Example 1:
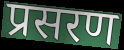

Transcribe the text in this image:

प्रसरण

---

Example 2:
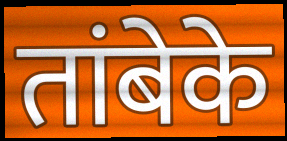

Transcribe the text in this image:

तांबेके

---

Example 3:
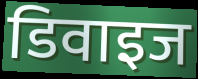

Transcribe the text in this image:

डिवाइज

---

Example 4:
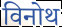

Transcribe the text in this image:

विनोथ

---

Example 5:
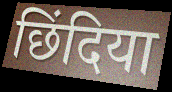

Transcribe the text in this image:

छिंदिया